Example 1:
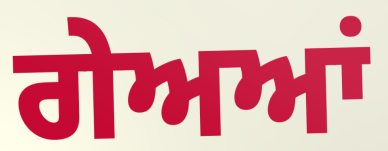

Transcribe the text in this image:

ਗੇਅਆਂ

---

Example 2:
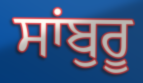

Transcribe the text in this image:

ਸਾਂਬੁਰੂ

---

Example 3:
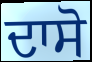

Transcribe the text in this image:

ਦਾਸੋ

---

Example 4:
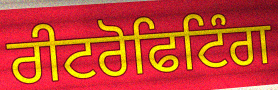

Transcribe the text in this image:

ਰੀਟਰੋਫਿਟਿੰਗ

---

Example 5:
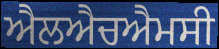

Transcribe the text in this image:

ਐਲਐਚਐਮਸੀ